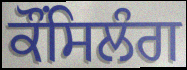
ਕੌਂਸਿਲੰਗ